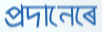
প্ৰদানেৰে